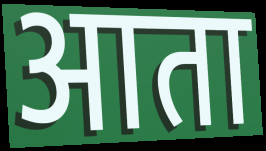
आता